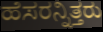
ಹೆಸರನ್ನಿತ್ತರು